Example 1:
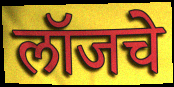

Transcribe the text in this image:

लॉजचे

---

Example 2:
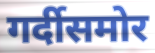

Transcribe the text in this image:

गर्दीसमोर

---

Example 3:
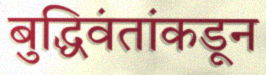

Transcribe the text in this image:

बुद्धिवंतांकडून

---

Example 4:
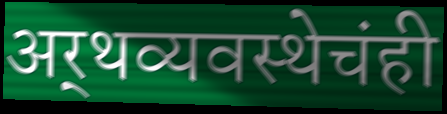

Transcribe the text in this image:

अर्थव्यवस्थेचंही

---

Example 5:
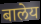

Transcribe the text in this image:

बालेय